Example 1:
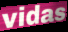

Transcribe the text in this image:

vidas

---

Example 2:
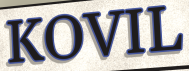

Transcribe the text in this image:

KOVIL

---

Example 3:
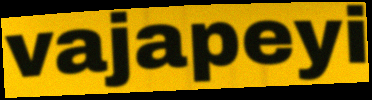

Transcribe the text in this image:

vajapeyi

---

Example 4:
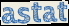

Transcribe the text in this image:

astat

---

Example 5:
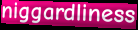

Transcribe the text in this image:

niggardliness